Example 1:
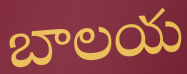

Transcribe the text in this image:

బాలయ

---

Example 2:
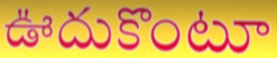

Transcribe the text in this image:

ఊదుకొంటూ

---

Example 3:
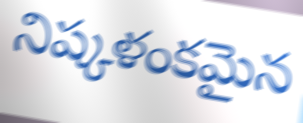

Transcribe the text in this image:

నిష్కళంకమైన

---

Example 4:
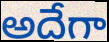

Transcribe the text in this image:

అదేగా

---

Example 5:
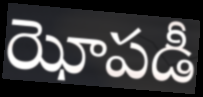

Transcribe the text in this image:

ఝోపడీ